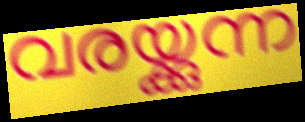
വരയ്ക്കുന്ന